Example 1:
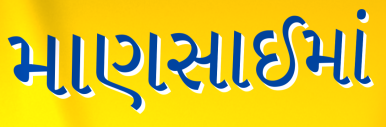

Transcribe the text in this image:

માણસાઈમાં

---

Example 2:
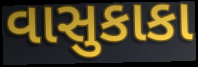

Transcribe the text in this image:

વાસુકાકા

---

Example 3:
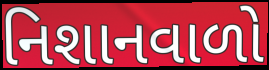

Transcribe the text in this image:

નિશાનવાળો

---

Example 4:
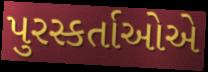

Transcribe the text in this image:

પુરસ્કર્તાઓએ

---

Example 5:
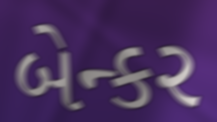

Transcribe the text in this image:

બેન્કર